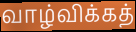
வாழ்விக்கத்